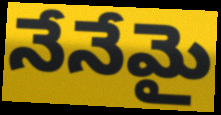
నేనేమై